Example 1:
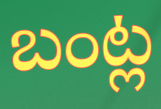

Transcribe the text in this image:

బంట్ల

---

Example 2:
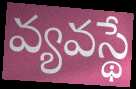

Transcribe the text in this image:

వ్యవస్థే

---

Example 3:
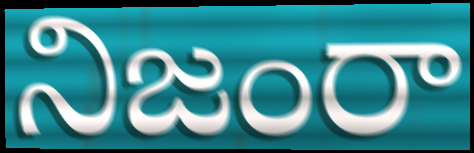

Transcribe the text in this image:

నిజంరా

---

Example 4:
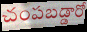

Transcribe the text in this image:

చంపబడ్డారో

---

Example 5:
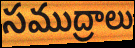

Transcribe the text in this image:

సముద్రాలు